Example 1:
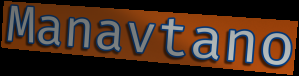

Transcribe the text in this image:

Manavtano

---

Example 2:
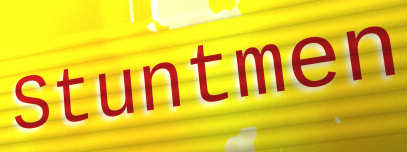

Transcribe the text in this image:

Stuntmen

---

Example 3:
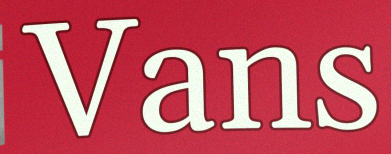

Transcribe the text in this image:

Vans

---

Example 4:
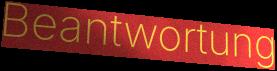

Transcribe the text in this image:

Beantwortung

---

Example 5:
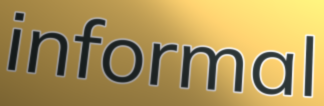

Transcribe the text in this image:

informal